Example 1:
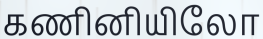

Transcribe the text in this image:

கணினியிலோ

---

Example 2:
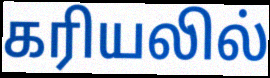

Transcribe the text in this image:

கரியலில்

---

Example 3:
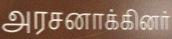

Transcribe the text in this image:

அரசனாக்கினர்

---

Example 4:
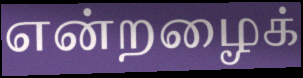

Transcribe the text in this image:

என்றழைக்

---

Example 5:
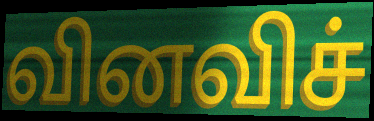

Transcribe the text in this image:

வினவிச்